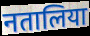
नतालिया